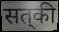
सत्‌की